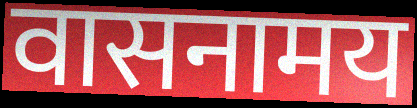
वासनामय